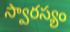
స్వారస్యం